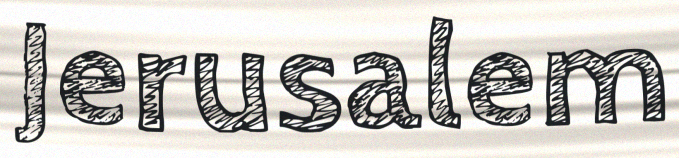
Jerusalem